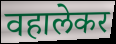
वहालेकर